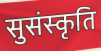
सुसंस्कृति